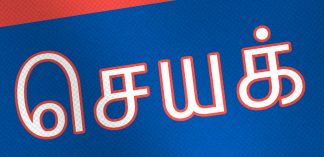
செயக்